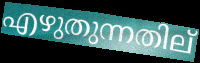
എഴുതുന്നതില്